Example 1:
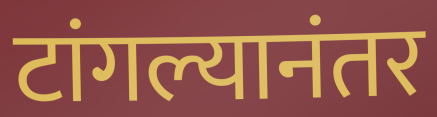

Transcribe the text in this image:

टांगल्यानंतर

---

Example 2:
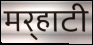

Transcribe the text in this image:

मर्‍हाटी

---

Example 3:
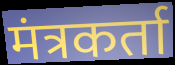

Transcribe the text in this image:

मंत्रकर्ता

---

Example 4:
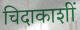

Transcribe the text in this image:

चिदाकाशीं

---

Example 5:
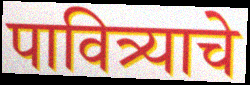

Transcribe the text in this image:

पावित्र्याचे